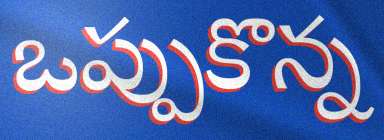
ఒప్పుకొన్న